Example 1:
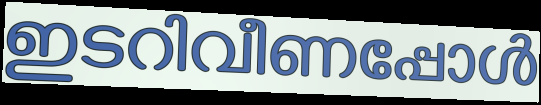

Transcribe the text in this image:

ഇടറിവീണപ്പോൾ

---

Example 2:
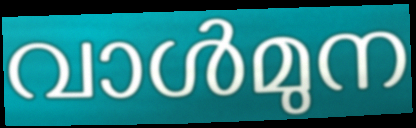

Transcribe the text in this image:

വാൾമുന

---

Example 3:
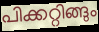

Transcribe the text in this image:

പിക്കറ്റിങ്ങും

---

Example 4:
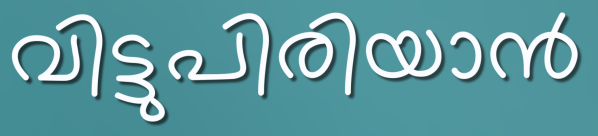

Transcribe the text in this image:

വിട്ടുപിരിയാൻ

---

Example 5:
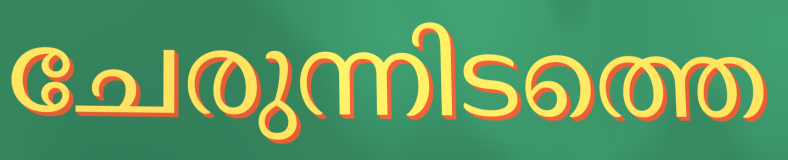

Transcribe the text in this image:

ചേരുന്നിടത്തെ